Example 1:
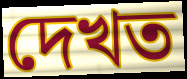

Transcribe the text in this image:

দেখত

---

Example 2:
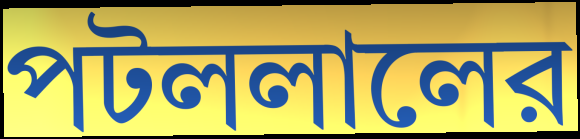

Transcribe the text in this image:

পটললালের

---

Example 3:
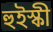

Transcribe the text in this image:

হুইস্কী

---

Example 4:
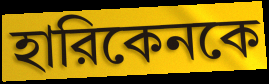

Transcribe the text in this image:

হারিকেনকে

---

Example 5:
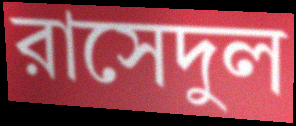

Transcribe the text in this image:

রাসেদুল